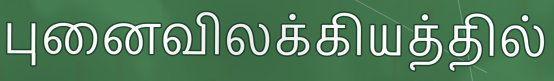
புனைவிலக்கியத்தில்